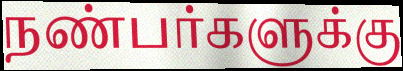
நண்பர்களுக்கு